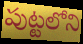
పుట్టలోని